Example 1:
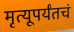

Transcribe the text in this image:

मृत्यूपर्यंतचं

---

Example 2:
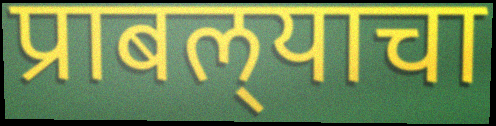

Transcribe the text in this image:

प्राबल्याचा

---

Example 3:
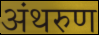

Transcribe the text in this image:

अंथरुण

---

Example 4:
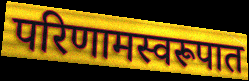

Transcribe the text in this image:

परिणामस्वरूपात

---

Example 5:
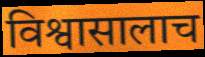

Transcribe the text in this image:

विश्वासालाच